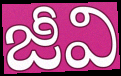
జీవి